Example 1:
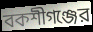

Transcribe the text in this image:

বকশীগঞ্জের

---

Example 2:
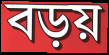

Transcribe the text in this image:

বড়য়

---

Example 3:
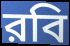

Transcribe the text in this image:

রবি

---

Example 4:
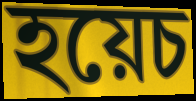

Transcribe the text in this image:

হয়েচ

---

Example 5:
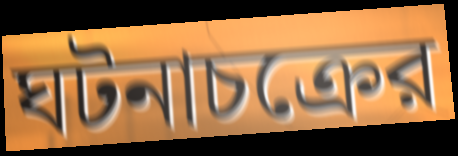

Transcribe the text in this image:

ঘটনাচক্রের